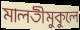
মালতীমুকুলে